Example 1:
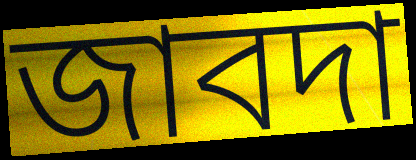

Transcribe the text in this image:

জাবদা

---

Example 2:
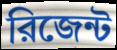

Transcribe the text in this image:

রিজেন্ট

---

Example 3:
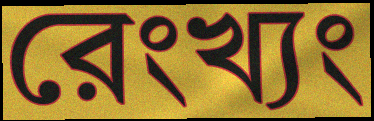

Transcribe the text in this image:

রেংখ্যং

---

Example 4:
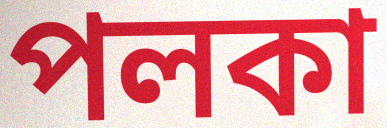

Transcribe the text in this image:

পলকা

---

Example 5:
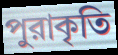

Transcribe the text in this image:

পুরাকৃতি